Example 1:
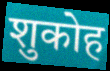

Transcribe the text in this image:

शुकोह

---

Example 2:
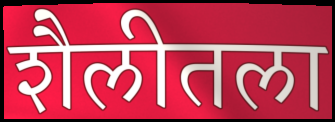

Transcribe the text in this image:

शैलीतला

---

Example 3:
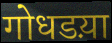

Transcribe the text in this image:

गोधडय़ा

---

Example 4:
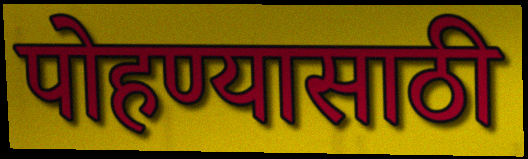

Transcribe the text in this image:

पोहण्यासाठी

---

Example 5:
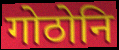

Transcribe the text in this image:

गोठोनि